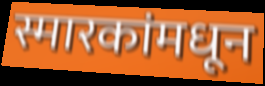
स्मारकांमधून